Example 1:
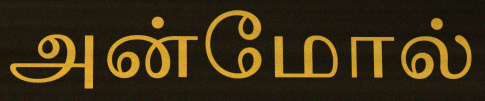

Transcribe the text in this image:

அன்மோல்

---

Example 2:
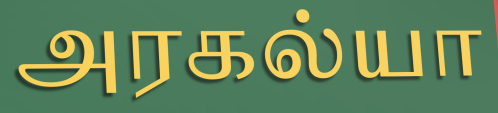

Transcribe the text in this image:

அரகல்யா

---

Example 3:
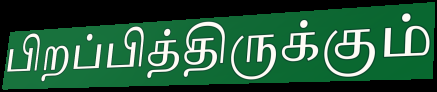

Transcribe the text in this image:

பிறப்பித்திருக்கும்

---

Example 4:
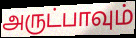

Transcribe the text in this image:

அருட்பாவும்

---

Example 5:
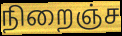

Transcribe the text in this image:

நிறைஞ்ச